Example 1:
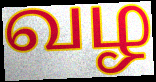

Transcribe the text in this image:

வழ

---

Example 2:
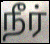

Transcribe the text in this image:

நீர்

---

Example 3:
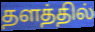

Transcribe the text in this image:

தளத்தில்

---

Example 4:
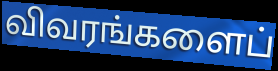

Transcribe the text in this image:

விவரங்களைப்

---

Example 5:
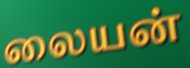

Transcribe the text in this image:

லையன்